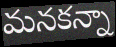
మనకన్నా